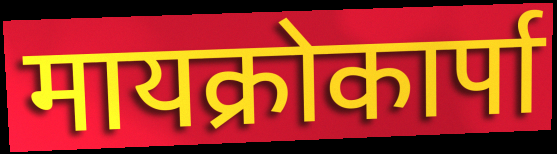
मायक्रोकार्पा